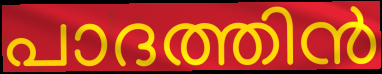
പാദത്തിൻ